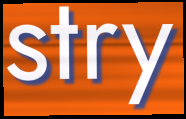
stry